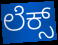
ಲೆಕ್ಸ್